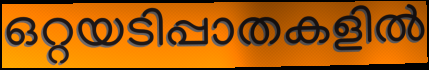
ഒറ്റയടിപ്പാതകളിൽ